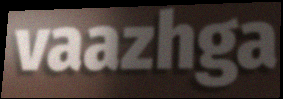
vaazhga